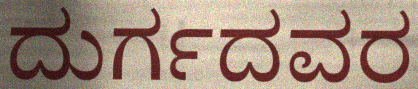
ದುರ್ಗದವರ